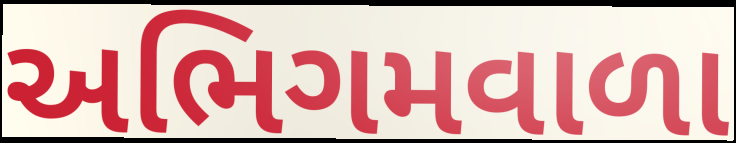
અભિગમવાળા